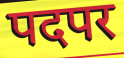
पदपर